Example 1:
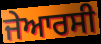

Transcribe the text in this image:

ਜੇਆਰਸੀ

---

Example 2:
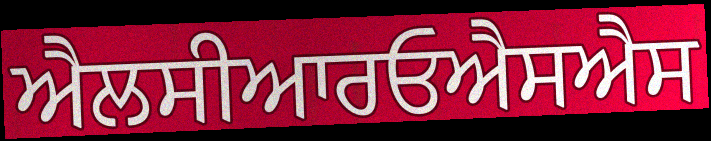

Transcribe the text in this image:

ਐਲਸੀਆਰਓਐਸਐਸ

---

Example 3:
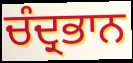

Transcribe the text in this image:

ਚੰਦ੍ਰਭਾਨ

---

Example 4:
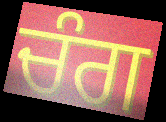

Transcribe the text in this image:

ਚੰਗ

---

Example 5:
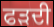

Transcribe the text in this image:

ਫੜਦੀ